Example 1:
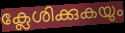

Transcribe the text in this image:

ക്ലേശിക്കുകയും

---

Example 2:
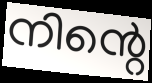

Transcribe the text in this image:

നിന്റെ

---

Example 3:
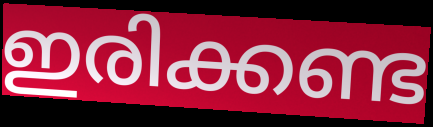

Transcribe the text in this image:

ഇരിക്കണ്ട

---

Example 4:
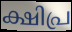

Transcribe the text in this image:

ക്ഷിപ്ര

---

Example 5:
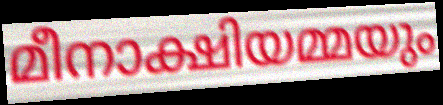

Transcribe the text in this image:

മീനാക്ഷിയമ്മയും